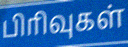
பிரிவுகள்